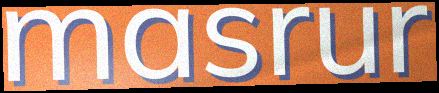
masrur